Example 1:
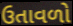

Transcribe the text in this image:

ઉતાવળો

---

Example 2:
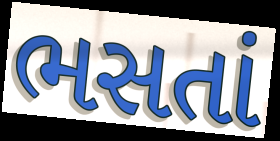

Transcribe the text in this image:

ભસતાં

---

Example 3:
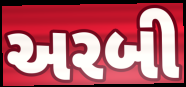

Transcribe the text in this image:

અરબી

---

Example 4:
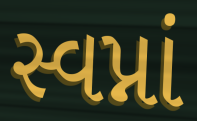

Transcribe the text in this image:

સ્વપ્નાં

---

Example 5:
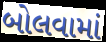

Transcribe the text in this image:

બોલવામાં